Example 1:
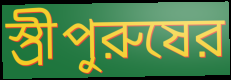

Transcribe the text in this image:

স্ত্রীপুরুষের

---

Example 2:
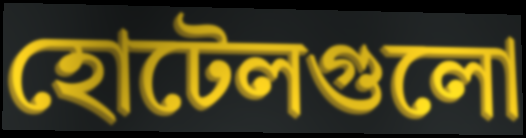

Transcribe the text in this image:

হোটেলগুলো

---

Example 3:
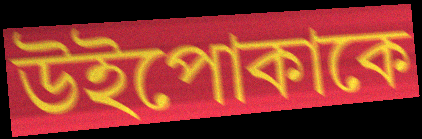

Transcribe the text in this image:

উইপোকাকে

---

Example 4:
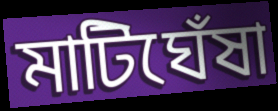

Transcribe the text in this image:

মাটিঘেঁষা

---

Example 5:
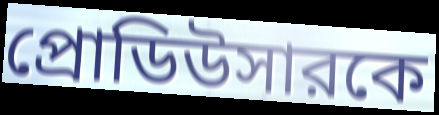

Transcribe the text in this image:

প্রোডিউসারকে